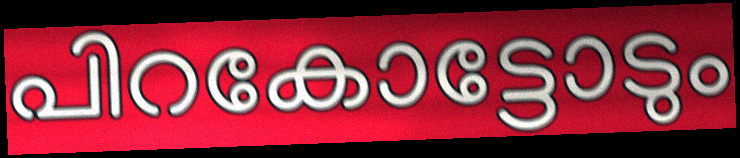
പിറകോട്ടോടും